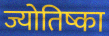
ज्योतिष्का